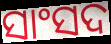
ସାଂସଦ